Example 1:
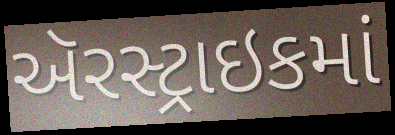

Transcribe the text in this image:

ઍરસ્ટ્રાઇકમાં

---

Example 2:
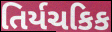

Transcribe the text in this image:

તિર્યચકિક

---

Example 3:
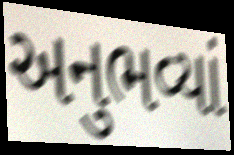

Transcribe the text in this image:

અનુભવ્યાં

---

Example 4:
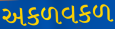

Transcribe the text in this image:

અકળવકળ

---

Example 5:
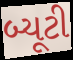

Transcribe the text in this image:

બ્યૂટી